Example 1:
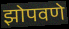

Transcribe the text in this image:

झोपवणे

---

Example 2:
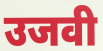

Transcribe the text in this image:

उजवी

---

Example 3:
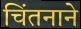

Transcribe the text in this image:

चिंतनाने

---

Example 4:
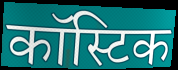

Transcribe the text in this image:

कॉस्टिक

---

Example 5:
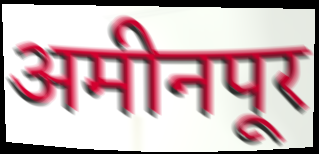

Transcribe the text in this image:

अमीनपूर